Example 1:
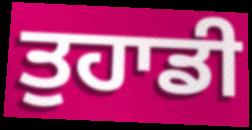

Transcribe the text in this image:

ਤੁਹਾਡੀ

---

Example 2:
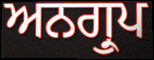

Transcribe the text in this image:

ਅਨਗ੍ਰੁਪ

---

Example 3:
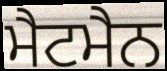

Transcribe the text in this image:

ਮੈਟਮੈਨ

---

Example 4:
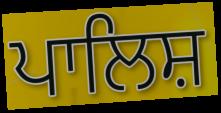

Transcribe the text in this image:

ਪਾਲਿਸ਼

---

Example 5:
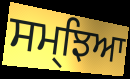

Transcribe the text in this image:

ਸਮ੍ਝਿਆ